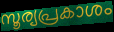
സൂര്യപ്രകാശം